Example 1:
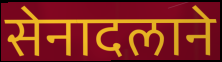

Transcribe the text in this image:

सेनादलाने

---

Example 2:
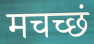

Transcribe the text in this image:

मचच्छं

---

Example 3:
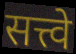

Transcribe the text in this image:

सत्त्वे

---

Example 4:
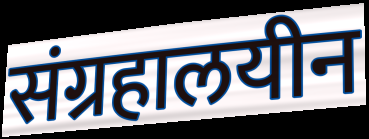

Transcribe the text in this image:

संग्रहालयीन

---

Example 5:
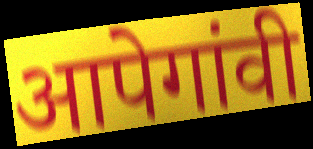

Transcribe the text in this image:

आपेगांवी